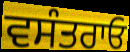
ਵਸੰਤਰਾਓ